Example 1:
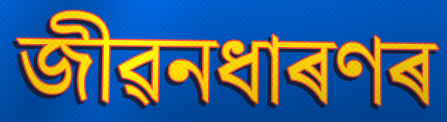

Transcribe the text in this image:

জীৱনধাৰণৰ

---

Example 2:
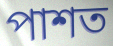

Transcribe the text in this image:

পাশত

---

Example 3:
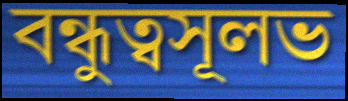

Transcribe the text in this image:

বন্ধুত্বসূলভ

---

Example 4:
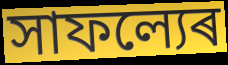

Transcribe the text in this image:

সাফল্যেৰ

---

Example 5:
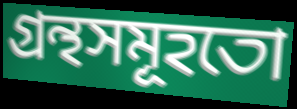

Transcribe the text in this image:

গ্ৰন্থসমূহতো